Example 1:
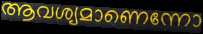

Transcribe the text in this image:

ആവശ്യമാണെന്നോ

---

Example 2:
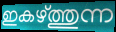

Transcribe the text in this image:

ഇകഴ്ത്തുന്ന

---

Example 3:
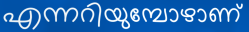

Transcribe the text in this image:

എന്നറിയുമ്പോഴാണ്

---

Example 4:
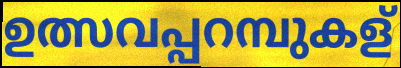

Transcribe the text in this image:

ഉത്സവപ്പറമ്പുകള്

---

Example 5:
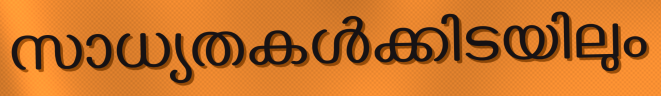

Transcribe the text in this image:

സാധ്യതകൾക്കിടയിലും